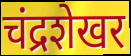
चंद्रशेखर